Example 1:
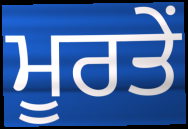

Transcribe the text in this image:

ਮੂਰਤੇਂ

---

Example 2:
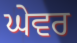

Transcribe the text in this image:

ਘੇਵਰ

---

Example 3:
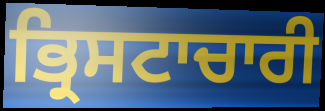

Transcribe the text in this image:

ਭ੍ਰਿਸਟਾਚਾਰੀ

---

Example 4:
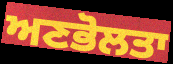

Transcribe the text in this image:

ਅਣਭੋਲਤਾ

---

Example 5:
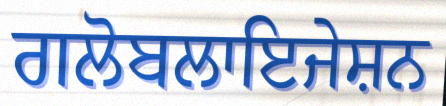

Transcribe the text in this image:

ਗਲੋਬਲਾਇਜੇਸ਼ਨ